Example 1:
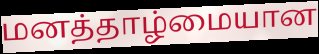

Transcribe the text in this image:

மனத்தாழ்மையான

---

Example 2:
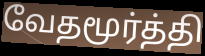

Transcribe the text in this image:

வேதமூர்த்தி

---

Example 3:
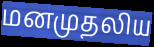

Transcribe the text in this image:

மனமுதலிய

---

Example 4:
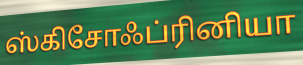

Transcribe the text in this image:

ஸ்கிசோஃப்ரினியா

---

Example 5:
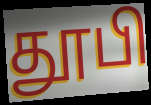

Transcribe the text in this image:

தூபி